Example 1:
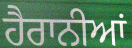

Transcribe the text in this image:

ਹੈਰਾਨੀਆਂ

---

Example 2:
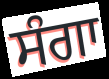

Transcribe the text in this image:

ਸੰਗਾ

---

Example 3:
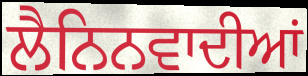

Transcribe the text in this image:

ਲੈਨਿਨਵਾਦੀਆਂ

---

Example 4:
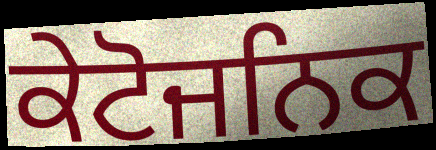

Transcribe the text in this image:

ਕੇਟੋਜਨਿਕ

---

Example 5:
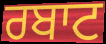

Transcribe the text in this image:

ਰਬਾਟ